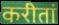
करीतां